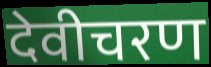
देवीचरण